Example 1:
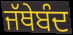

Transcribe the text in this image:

ਜੱਥੇਬੰਦ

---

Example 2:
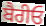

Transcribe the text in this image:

ਬੈਰੀਓ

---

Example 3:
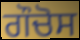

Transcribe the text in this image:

ਗੌਚੋਸ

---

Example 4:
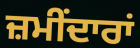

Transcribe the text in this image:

ਜ਼ਮੀਂਦਾਰਾਂ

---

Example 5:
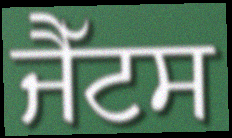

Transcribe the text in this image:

ਜੈੱਟਸ